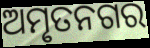
ଅମୃତନଗର